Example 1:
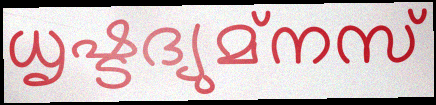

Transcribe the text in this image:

ധൃഷ്ടദ്യുമ്നസ്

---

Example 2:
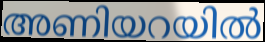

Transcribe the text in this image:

അണിയറയിൽ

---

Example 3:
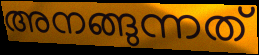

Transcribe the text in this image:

അനങ്ങുന്നത്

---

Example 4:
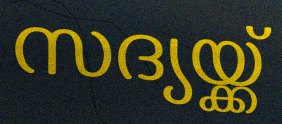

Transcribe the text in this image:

സദ്യയ്ക്ക്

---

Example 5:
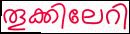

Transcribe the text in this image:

തൂക്കിലേറി